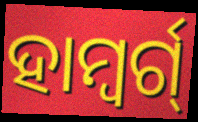
ହାମ୍ବର୍ଗ୍